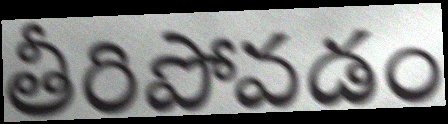
తీరిపోవడం